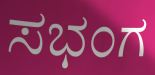
ಸಭಂಗ